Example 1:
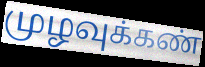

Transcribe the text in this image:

முழவுக்கண்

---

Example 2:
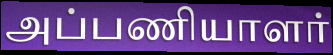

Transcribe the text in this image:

அப்பணியாளர்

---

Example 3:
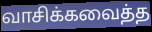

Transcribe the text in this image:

வாசிக்கவைத்த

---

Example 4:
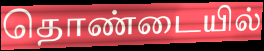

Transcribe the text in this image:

தொண்டையில்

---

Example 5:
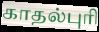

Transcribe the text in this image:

காதல்புரி